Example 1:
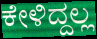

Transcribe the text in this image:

ಕೇಳಿದ್ದಲ್ಲ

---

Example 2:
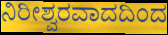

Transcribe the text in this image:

ನಿರೀಶ್ವರವಾದದಿಂದ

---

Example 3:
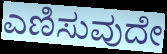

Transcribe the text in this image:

ಎಣಿಸುವುದೇ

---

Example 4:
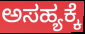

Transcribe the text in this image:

ಅಸಹ್ಯಕ್ಕೆ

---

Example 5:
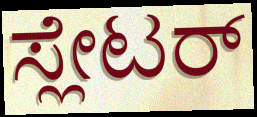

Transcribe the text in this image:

ಸ್ಲೇಟರ್